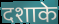
दशाके